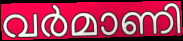
വർമാണി